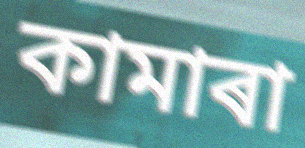
কামাৰা